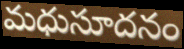
మధుసూదనం